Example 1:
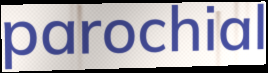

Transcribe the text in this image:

parochial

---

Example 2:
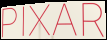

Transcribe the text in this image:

PIXAR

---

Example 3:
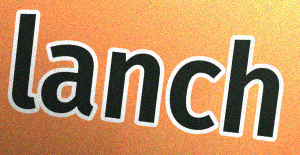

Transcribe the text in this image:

lanch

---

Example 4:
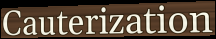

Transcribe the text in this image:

Cauterization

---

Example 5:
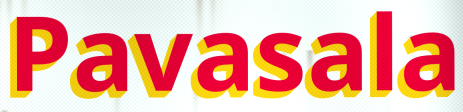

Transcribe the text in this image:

Pavasala